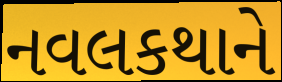
નવલકથાને